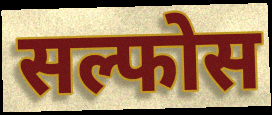
सल्फोस